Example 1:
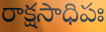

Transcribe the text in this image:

రాక్షసాధిపః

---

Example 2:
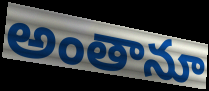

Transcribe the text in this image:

అంతానూ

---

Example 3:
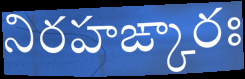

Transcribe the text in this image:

నిరహఙ్కారః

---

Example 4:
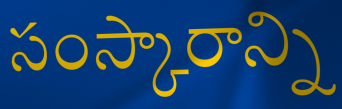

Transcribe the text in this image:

సంస్కారాన్ని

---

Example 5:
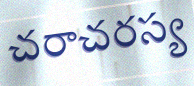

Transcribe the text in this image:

చరాచరస్య